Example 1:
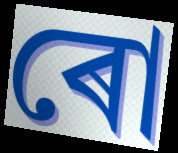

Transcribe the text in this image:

ৰো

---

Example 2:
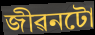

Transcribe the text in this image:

জীৱনটো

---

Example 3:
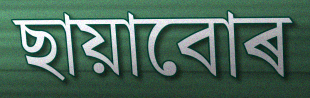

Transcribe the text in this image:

ছায়াবোৰ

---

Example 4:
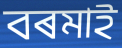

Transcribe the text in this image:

বৰমাই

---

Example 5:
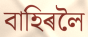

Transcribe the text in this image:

বাহিৰলৈ